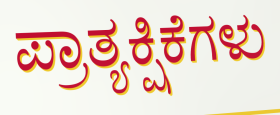
ಪ್ರಾತ್ಯಕ್ಷಿಕೆಗಳು